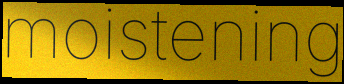
moistening